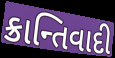
ક્રાન્તિવાદી